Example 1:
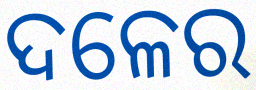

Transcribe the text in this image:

ଦଳେର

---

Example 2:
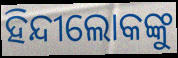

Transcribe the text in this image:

ହିନ୍ଦୀଲୋକଙ୍କୁ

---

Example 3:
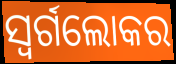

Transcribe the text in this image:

ସ୍ୱର୍ଗଲୋକର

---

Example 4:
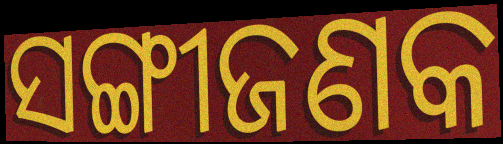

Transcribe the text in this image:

ସଙ୍ଗୀଜଣକ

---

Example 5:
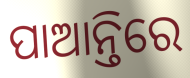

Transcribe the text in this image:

ପାଆନ୍ତିରେ